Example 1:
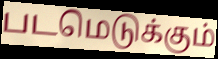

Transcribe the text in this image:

படமெடுக்கும்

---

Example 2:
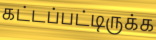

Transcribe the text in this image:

கட்டப்பட்டிருக்க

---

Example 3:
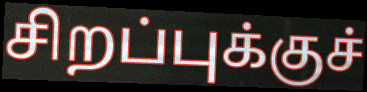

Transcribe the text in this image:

சிறப்புக்குச்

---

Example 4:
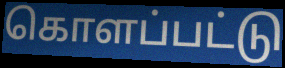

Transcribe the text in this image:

கொளப்பட்டு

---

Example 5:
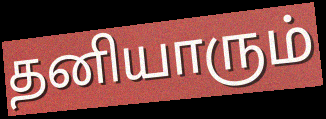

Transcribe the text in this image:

தனியாரும்